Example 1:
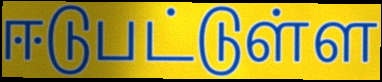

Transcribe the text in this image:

ஈடுபட்டுள்ள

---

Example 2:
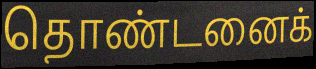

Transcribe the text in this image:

தொண்டனைக்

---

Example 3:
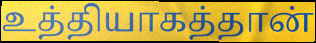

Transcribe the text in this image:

உத்தியாகத்தான்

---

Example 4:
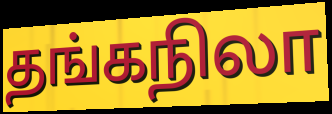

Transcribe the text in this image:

தங்கநிலா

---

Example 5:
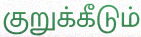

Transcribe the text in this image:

குறுக்கீடும்